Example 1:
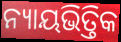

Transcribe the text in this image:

ନ୍ୟାୟଭିତ୍ତିକ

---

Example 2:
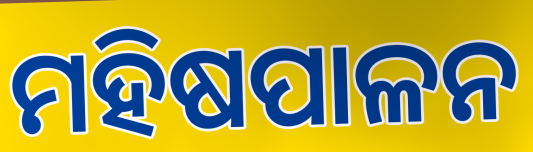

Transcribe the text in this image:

ମହିଷପାଳନ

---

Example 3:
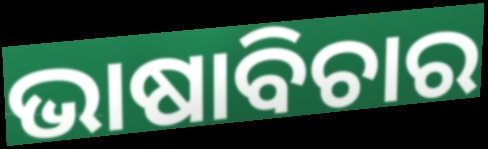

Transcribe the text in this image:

ଭାଷାବିଚାର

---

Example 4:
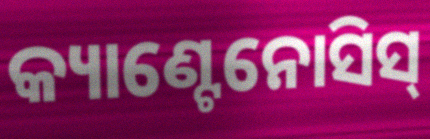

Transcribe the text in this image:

କ୍ୟାଣ୍ଟେନୋସିସ୍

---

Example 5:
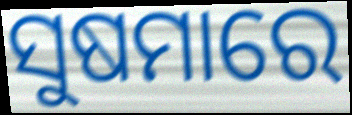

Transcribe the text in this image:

ସୁଷମାରେ